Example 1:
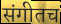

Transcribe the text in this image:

संगीतच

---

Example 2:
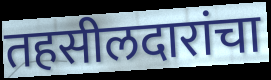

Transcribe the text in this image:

तहसीलदारांचा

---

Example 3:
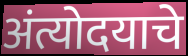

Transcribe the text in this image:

अंत्योदयाचे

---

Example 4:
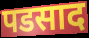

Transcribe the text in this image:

पडसाद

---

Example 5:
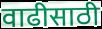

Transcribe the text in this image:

वाढीसाठी